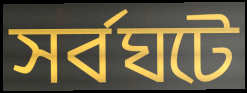
সর্বঘটে